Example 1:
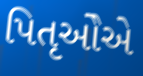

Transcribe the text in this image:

પિતૃઓેએ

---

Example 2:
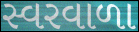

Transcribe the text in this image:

સ્વરવાળા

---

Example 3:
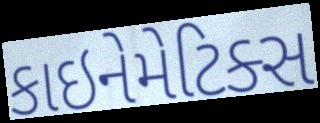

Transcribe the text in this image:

કાઇનેમેટિક્સ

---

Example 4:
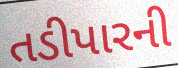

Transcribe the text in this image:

તડીપારની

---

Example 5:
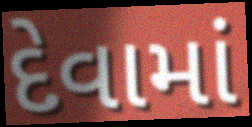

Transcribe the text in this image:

દેવામાં